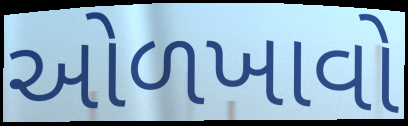
ઓળખાવો